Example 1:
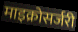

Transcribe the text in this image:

माइक्रोसर्जरी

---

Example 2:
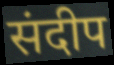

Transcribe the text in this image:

संदीप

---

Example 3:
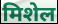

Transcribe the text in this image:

मिशेल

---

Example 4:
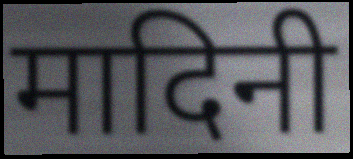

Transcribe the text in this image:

मादिनी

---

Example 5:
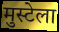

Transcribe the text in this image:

मुस्टेला